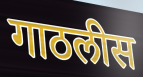
गाठलीस